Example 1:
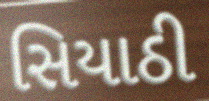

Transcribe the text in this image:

સિયાઠી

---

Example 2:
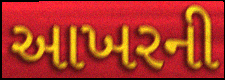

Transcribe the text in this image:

આખરની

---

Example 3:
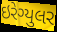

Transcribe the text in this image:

ઇરેગ્યુલર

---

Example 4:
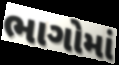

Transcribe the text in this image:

ભાગોમાં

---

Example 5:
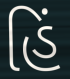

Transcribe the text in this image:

હિં